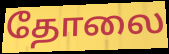
தோலை